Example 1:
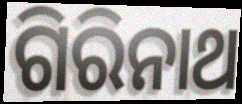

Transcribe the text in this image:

ଗିରିନାଥ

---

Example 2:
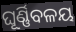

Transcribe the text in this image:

ଘୂର୍ଣ୍ଣିବଳୟ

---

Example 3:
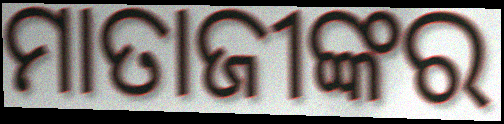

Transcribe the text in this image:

ମାତାଜୀଙ୍କର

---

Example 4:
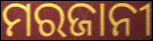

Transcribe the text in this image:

ମରଜାନୀ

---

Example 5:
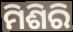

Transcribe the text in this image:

ମିଶିରି